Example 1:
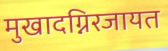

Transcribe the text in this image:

मुखादग्निरजायत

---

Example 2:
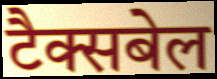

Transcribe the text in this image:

टैक्सबेल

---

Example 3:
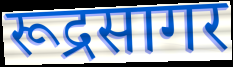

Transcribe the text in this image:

रूद्रसागर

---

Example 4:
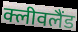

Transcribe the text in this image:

क्लीवलैंड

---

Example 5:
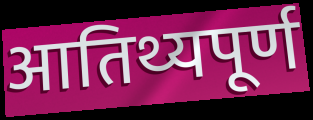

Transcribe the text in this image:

आतिथ्यपूर्ण